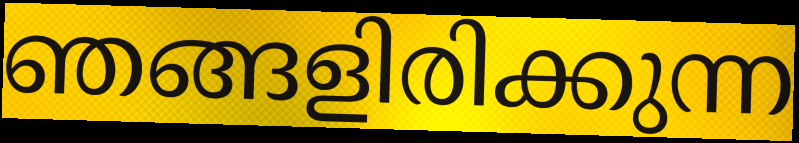
ഞങ്ങളിരിക്കുന്ന